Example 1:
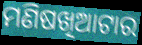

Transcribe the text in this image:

ମଣିଷଖିଆଟାର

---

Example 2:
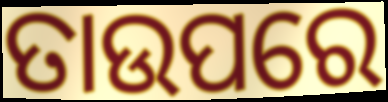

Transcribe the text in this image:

ତାଉପରେ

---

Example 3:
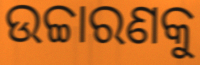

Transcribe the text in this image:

ଉଚ୍ଚାରଣକୁ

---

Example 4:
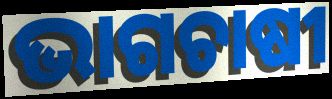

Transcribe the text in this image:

ଭାଗଚାଷୀ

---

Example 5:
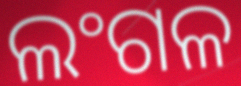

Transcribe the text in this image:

ଲଂଗଳ